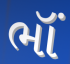
ભૉં